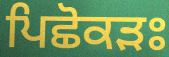
ਪਿਛੋਕੜਃ